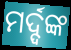
ମର୍ଦ୍ଦଙ୍କ